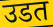
उडत